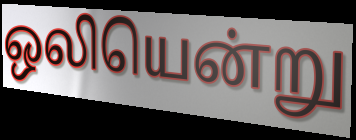
ஒலியென்று